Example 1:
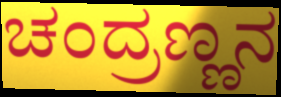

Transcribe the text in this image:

ಚಂದ್ರಣ್ಣನ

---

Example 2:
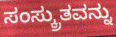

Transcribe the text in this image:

ಸಂಸ್ಕ್ರುತವನ್ನು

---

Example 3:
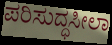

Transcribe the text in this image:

ಪರಿಸುದ್ಧಸೀಲಾ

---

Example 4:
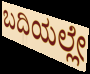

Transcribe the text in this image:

ಬದಿಯಲ್ಲೇ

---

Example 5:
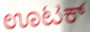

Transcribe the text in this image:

ಊಟಕ್